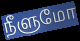
நீளுமோ